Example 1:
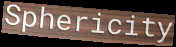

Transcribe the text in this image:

Sphericity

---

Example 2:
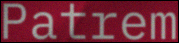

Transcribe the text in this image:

Patrem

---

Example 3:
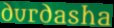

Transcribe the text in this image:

durdasha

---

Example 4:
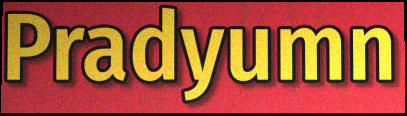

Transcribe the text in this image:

Pradyumn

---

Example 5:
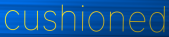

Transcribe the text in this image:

cushioned